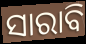
ସାରାବି